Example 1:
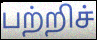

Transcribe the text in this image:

பற்றிச்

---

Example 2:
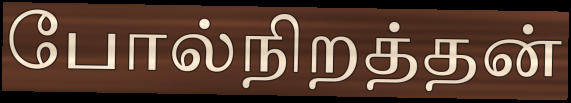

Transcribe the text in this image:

போல்நிறத்தன்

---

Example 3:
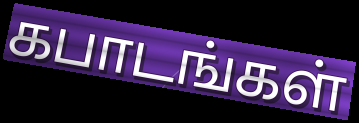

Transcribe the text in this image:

கபாடங்கள்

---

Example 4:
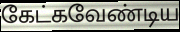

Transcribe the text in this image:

கேட்கவேண்டிய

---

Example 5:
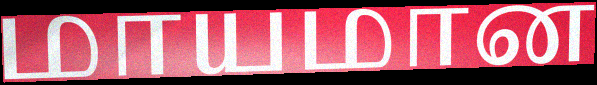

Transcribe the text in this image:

மாயமான